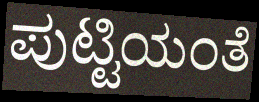
ಪುಟ್ಟಿಯಂತೆ